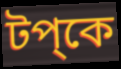
টপ্কে